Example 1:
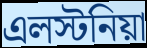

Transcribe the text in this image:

এলস্টনিয়া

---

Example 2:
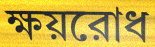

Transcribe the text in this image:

ক্ষয়রোধ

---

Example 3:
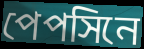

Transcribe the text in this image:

পেপসিনে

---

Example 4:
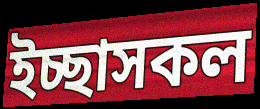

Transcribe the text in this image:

ইচ্ছাসকল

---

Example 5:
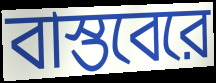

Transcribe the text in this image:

বাস্তবেরে